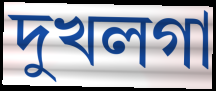
দুখলগা